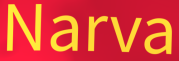
Narva